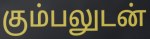
கும்பலுடன்